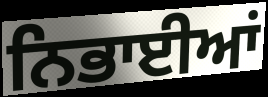
ਨਿਭਾਈਆਂ